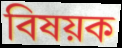
বিষয়ক